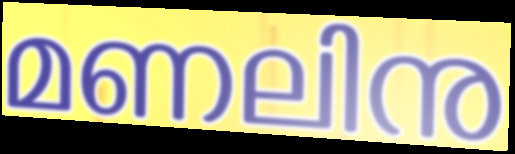
മണലിനു